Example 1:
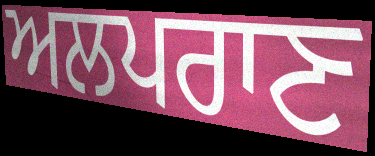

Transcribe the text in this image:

ਅਲਪਰਾਣ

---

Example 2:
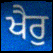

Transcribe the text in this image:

ਖੈਰੁ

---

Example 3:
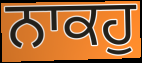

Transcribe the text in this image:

ਨਾਕਹੁ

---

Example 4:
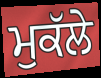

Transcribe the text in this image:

ਮੁਕੱਲੇ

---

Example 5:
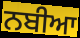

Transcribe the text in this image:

ਨਬੀਆ